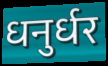
धनुर्धर